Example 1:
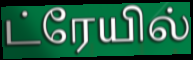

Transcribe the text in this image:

ட்ரேயில்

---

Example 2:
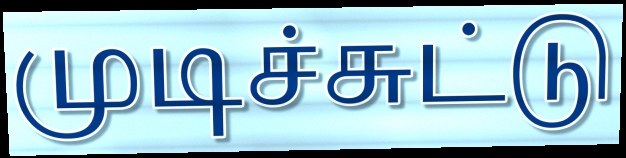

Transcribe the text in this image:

முடிச்சுட்டு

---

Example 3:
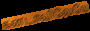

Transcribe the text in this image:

கனடாவிலேயே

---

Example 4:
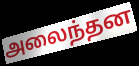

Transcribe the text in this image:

அலைந்தன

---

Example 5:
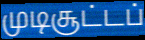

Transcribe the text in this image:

முடிசூட்டப்